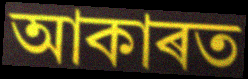
আকাৰত